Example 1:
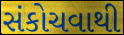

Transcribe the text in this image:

સંકોચવાથી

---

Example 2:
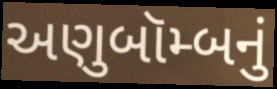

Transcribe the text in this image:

અણુબૉમ્બનું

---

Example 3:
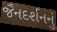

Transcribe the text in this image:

જૈનદર્શનનું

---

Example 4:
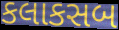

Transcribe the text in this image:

કલાકસબ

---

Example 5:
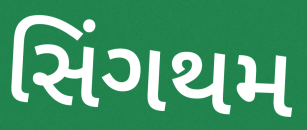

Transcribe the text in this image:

સિંગથમ